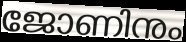
ജോണിനും